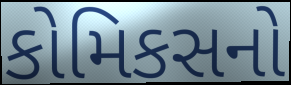
કોમિકસનો